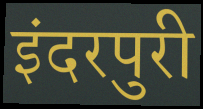
इंदरपुरी